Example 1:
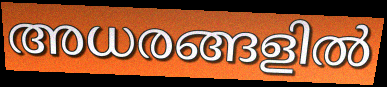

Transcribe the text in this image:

അധരങ്ങളിൽ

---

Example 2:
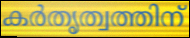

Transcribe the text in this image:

കർതൃത്വത്തിന്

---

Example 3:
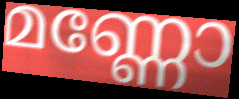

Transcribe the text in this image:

മണ്ണോ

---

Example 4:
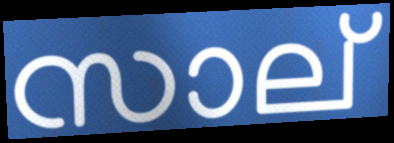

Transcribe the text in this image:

സാല്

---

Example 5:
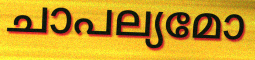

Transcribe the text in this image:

ചാപല്യമോ